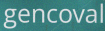
gencoval